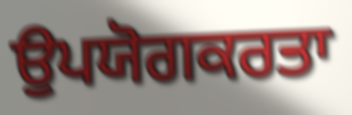
ਉਪਯੋਗਕਰਤਾ